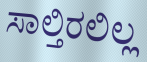
ಸಾಲ್ತಿರಲಿಲ್ಲ